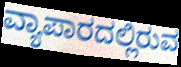
ವ್ಯಾಪಾರದಲ್ಲಿರುವ